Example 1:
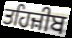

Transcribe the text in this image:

ਤਹਿਜ਼ੀਬ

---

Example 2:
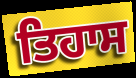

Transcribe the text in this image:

ਤਿਹਾਸ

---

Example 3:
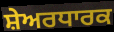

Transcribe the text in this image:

ਸ਼ੇਅਰਧਾਰਕ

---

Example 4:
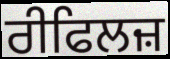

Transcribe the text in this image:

ਰੀਫਿਲਜ਼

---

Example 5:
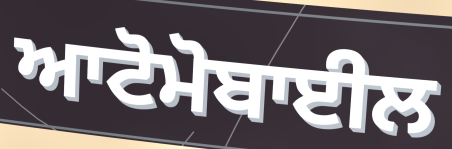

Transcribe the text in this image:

ਆਟੋਮੋਬਾਈਲ